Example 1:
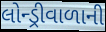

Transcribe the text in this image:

લોન્ડ્રીવાળાની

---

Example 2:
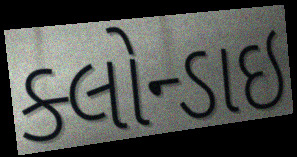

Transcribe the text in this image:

ક્લોન્ડાઇ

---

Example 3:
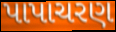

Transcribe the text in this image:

પાપાચરણ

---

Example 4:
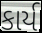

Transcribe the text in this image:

કાર્ય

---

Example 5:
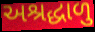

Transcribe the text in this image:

અશ્રદ્ધાળુ